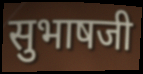
सुभाषजी